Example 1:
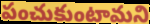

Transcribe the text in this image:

పంచుకుంటామని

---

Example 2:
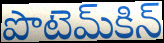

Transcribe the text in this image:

పొటెమ్‌కిన్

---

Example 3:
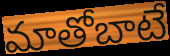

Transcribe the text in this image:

మాతోబాటే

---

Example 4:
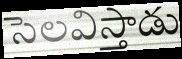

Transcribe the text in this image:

సెలవిస్తాడు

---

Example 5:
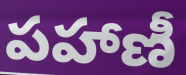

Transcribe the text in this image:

పహాణీ